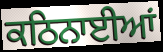
ਕਠਿਨਾਈਆਂ